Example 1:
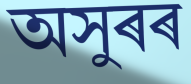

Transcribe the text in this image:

অসুৰৰ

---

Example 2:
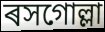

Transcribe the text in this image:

ৰসগোল্লা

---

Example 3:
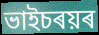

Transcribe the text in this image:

ভাইচৰয়ৰ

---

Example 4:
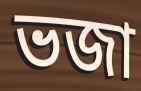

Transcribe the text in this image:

ভজা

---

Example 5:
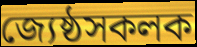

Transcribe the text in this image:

জ্যেষ্ঠসকলক